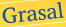
Grasal